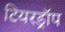
टियरड्रॉप